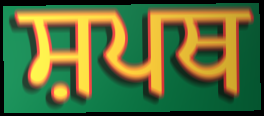
ਸ਼ਪਥ